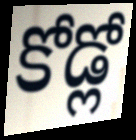
కోడ్లో